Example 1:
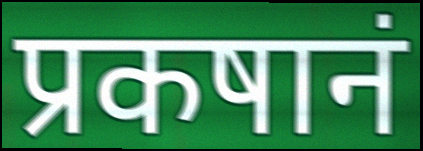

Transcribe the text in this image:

प्रकषानं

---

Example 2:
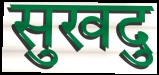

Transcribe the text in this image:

सुखदु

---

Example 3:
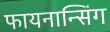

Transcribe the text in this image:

फायनान्सिंग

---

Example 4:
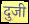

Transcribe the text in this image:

दुजी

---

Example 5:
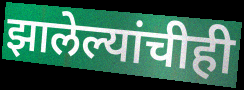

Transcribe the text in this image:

झालेल्यांचीही